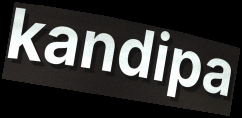
kandipa